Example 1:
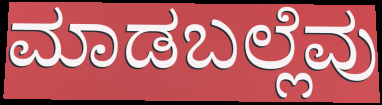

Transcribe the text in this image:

ಮಾಡಬಲ್ಲೆವು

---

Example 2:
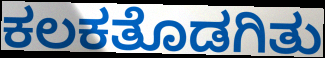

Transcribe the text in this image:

ಕಲಕತೊಡಗಿತು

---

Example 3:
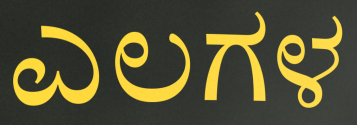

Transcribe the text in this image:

ಎಲಗಳ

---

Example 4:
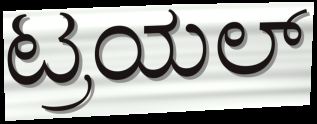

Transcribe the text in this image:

ಟ್ರಯಲ್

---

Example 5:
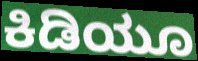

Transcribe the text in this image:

ಕಿಡಿಯೂ